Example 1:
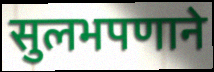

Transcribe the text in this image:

सुलभपणाने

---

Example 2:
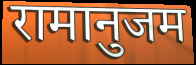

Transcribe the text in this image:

रामानुजम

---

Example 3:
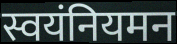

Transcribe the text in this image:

स्वयंनियमन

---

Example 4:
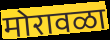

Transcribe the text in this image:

मोरावळा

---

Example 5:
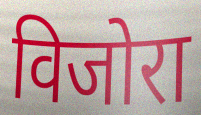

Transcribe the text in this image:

विजोरा